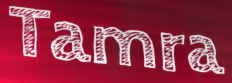
Tamra